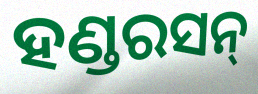
ହଣ୍ଡରସନ୍